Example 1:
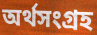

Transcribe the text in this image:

অর্থসংগ্রহ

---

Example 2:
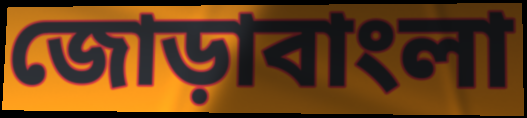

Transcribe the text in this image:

জোড়াবাংলা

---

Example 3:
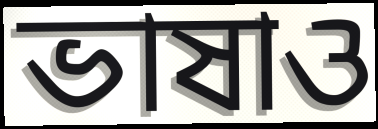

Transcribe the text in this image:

ভাষাও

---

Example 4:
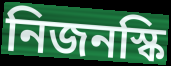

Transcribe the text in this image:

নিজনস্কি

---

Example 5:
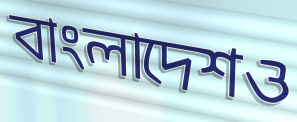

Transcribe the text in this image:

বাংলাদেশও